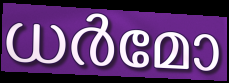
ധർമോ